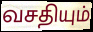
வசதியும்